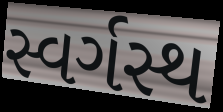
સ્વર્ગસ્થ